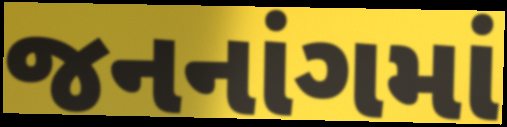
જનનાંગમાં